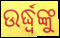
ଉର୍ଦ୍ଧ୍ୱଙ୍କୁ